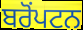
ਬਰੋਂਪਟਨ